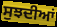
ਸੁਝਦੀਆਂ